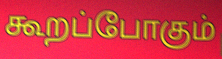
கூறப்போகும்